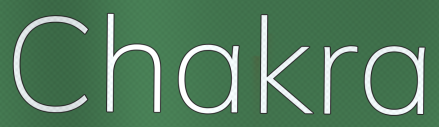
Chakra